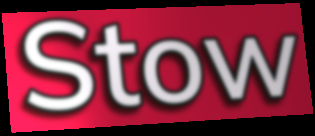
Stow